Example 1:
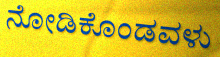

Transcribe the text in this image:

ನೋಡಿಕೊಂಡವಳು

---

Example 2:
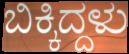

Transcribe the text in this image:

ಬಿಕ್ಕಿದ್ದಳು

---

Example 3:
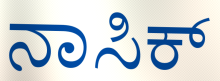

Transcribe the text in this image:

ನಾಸಿಕ್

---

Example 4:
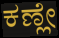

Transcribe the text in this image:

ಕಣ್ಲೇ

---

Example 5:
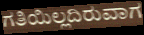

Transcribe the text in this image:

ಗತಿಯಿಲ್ಲದಿರುವಾಗ